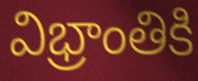
విభ్రాంతికి